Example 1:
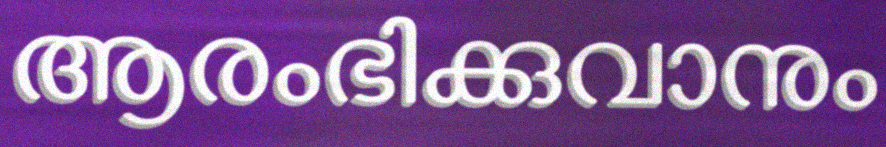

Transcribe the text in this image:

ആരംഭിക്കുവാനും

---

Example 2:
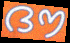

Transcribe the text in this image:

ദൗ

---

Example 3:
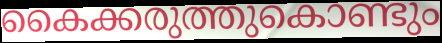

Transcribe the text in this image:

കൈക്കരുത്തുകൊണ്ടും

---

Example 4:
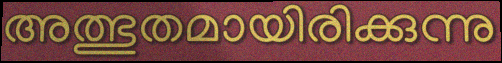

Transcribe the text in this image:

അത്ഭുതമായിരിക്കുന്നു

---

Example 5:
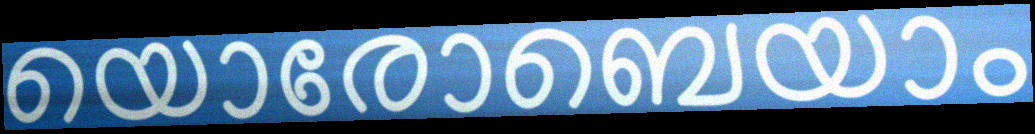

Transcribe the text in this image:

യൊരോബെയാം